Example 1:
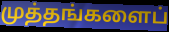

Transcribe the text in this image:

முத்தங்களைப்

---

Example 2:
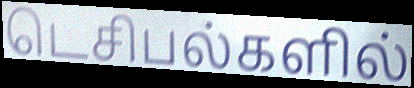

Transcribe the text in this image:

டெசிபல்களில்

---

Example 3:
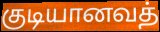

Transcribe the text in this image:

குடியானவத்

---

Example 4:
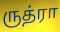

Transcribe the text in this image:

ருத்ரா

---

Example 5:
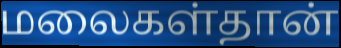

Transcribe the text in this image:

மலைகள்தான்